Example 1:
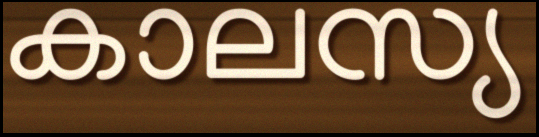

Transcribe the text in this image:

കാലസ്യ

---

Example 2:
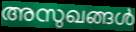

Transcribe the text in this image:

അസുഖങ്ങൾ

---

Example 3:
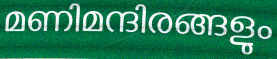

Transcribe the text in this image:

മണിമന്ദിരങ്ങളും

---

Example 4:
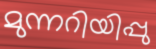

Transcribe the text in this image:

മുന്നറിയിപ്പു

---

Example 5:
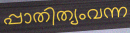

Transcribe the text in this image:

പ്പാതിത്യംവന്ന